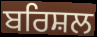
ਬਰਿਸ਼ਲ